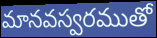
మానవస్వరముతో